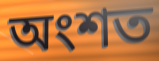
অংশত